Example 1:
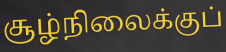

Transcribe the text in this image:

சூழ்நிலைக்குப்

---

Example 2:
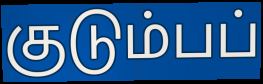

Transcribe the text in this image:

குடும்பப்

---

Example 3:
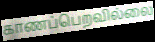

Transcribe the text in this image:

காணப்பெறவில்லை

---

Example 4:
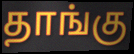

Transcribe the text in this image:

தாங்கு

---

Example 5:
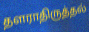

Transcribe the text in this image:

தளராதிருத்தல்